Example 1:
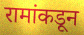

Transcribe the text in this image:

रामांकडून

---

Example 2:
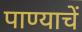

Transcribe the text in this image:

पाण्याचें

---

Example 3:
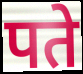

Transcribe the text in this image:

पते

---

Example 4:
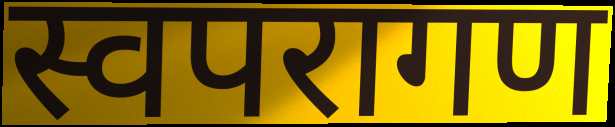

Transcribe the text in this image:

स्वपरागण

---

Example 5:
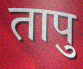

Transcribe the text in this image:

तापु